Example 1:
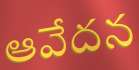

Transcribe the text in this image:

ఆవేదన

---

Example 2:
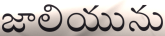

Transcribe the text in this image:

జాలియును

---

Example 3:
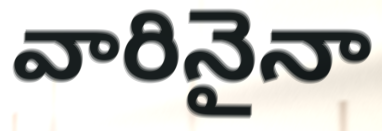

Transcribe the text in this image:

వారినైనా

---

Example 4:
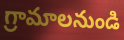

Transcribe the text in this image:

గ్రామాలనుండి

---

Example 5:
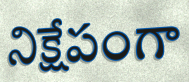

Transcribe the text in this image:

నిక్షేపంగా